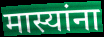
मास्यांना